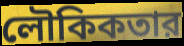
লৌকিকতার